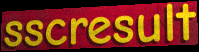
sscresult